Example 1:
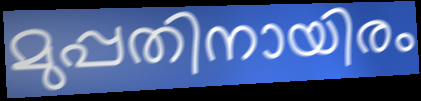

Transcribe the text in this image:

മുപ്പതിനായിരം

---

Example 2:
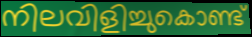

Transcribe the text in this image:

നിലവിളിച്ചുകൊണ്ട്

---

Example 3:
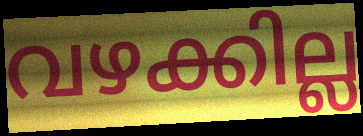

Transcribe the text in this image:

വഴക്കില്ല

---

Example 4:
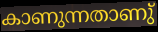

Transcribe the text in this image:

കാണുന്നതാണു്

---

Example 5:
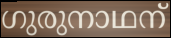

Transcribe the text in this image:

ഗുരുനാഥന്